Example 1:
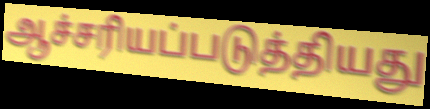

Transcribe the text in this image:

ஆச்சரியப்படுத்தியது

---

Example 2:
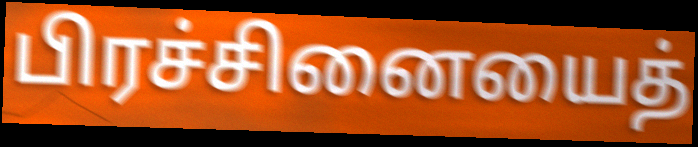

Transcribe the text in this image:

பிரச்சினையைத்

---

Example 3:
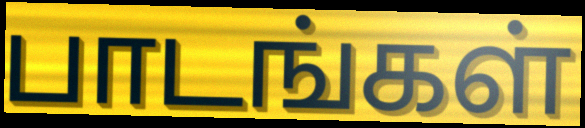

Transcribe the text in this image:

பாடங்கள்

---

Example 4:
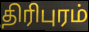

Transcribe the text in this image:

திரிபுரம்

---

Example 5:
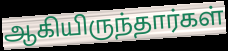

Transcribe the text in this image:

ஆகியிருந்தார்கள்